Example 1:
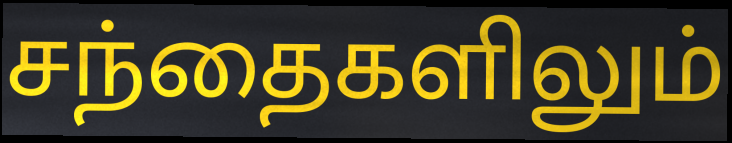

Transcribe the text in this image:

சந்தைகளிலும்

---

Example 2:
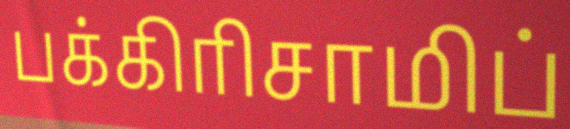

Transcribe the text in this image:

பக்கிரிசாமிப்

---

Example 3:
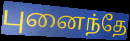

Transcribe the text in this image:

புனைந்தே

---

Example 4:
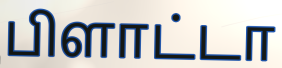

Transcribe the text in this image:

பிளாட்டா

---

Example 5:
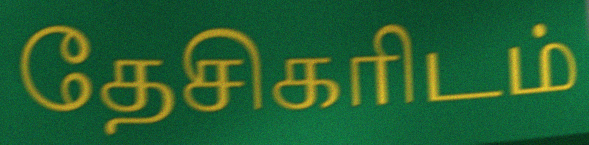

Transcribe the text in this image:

தேசிகரிடம்